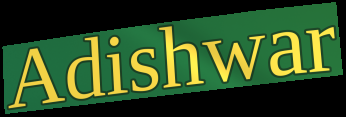
Adishwar